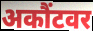
अकौंटवर